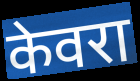
केवरा